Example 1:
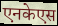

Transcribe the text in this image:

एनकेएस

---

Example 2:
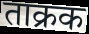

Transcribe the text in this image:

ताक्रक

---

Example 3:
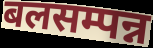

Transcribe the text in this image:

बलसम्पन्न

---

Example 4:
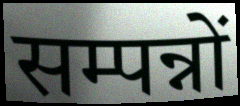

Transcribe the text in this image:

सम्पन्नों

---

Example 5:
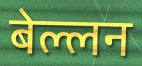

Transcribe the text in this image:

बेल्लन